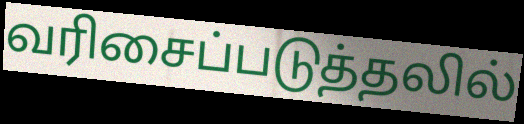
வரிசைப்படுத்தலில்